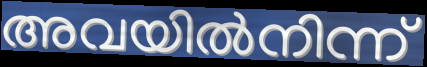
അവയിൽനിന്ന്